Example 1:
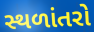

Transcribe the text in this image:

સ્થળાંતરો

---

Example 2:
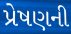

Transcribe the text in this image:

પ્રેષણની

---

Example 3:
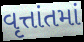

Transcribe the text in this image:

વૃત્તાંતમાં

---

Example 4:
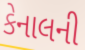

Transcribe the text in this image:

કેનાલની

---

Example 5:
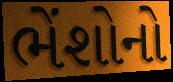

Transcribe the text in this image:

ભેંશોનો